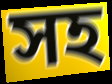
সহ